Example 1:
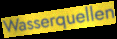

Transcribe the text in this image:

Wasserquellen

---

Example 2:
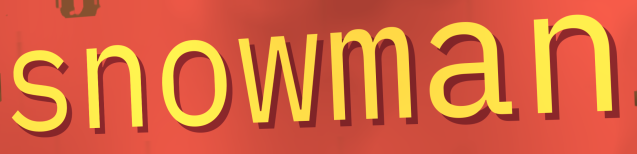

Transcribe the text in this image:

snowman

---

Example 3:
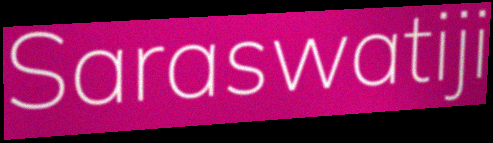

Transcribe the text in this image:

Saraswatiji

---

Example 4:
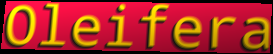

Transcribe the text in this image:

Oleifera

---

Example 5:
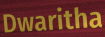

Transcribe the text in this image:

Dwaritha